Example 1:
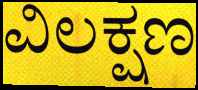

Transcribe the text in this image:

ವಿಲಕ್ಷಣ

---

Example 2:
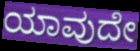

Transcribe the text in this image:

ಯಾವುದೇ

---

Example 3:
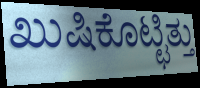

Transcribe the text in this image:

ಖುಷಿಕೊಟ್ಟಿತ್ತು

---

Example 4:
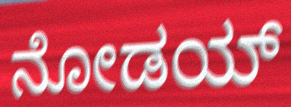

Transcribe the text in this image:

ನೋಡಯ್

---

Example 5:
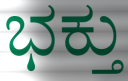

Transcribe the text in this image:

ಭಕ್ತು